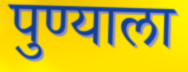
पुण्याला